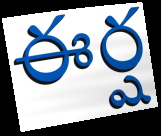
ఈర్ష